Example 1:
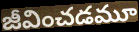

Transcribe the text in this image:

జీవించడమూ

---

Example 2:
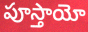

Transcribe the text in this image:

పూస్తాయో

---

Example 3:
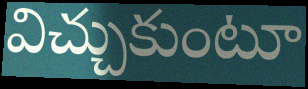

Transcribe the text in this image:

విచ్చుకుంటూ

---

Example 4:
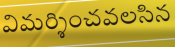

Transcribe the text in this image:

విమర్శించవలసిన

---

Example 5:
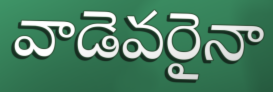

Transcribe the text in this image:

వాడెవరైనా